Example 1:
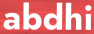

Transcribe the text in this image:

abdhi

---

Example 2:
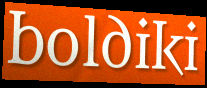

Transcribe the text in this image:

boldiki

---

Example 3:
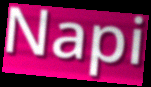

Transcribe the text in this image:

Napi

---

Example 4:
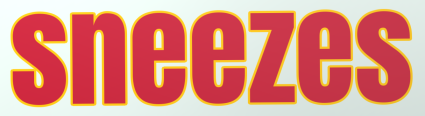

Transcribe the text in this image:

sneezes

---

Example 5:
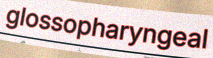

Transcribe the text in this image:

glossopharyngeal